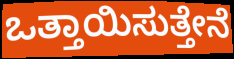
ಒತ್ತಾಯಿಸುತ್ತೇನೆ